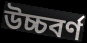
উচ্চবর্ণ